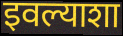
इवल्याशा